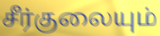
சீர்குலையும்